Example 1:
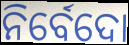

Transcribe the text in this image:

ନିର୍ବେଦୋ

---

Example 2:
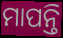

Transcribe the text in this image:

ମାପନ୍ତି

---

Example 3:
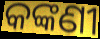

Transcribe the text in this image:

କଙ୍କଣୀ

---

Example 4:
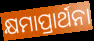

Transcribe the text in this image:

କ୍ଷମାପ୍ରାର୍ଥନା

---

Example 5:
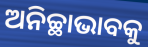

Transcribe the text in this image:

ଅନିଚ୍ଛାଭାବକୁ